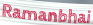
Ramanbhai